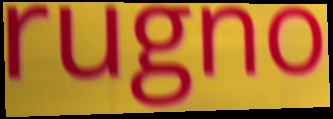
rugno